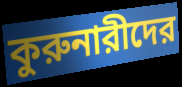
কুরুনারীদের